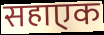
सहाएक